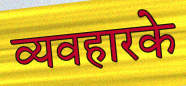
व्यवहारके